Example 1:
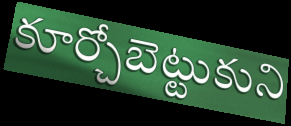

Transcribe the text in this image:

కూర్చోబెట్టుకుని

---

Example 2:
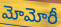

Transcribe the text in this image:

మోమోరీ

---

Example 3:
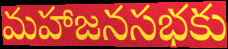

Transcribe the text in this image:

మహాజనసభకు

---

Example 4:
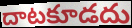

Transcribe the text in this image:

దాటకూడదు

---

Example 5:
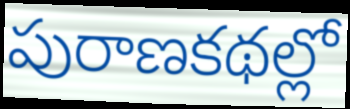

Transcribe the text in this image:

పురాణకథల్లో